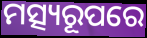
ମତ୍ସ୍ୟରୂପରେ